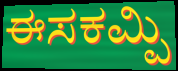
ಈಸಕಮ್ಪಿ